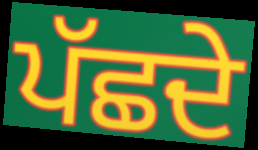
ਪੱਛਦੇ